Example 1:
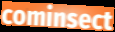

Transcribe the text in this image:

cominsect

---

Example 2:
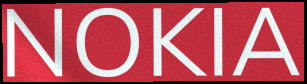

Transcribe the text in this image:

NOKIA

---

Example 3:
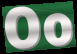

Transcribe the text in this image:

Oo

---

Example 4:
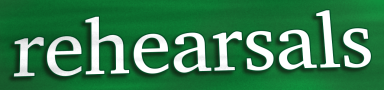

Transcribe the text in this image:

rehearsals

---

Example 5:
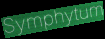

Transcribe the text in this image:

Symphytum